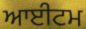
ਆਈਟਮ